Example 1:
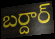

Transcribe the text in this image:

బర్దార్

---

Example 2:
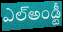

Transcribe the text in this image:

ఎల్అండ్టీ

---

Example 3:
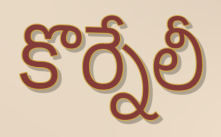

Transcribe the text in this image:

కొర్నేలీ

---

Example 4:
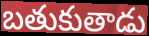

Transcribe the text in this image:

బతుకుతాడు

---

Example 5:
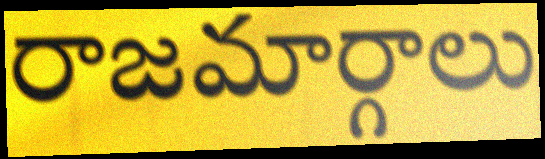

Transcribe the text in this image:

రాజమార్గాలు